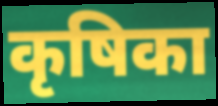
कृषिका